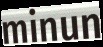
minun